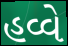
હવ્વે